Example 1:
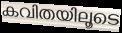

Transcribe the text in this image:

കവിതയിലൂടെ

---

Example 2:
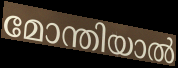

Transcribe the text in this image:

മോന്തിയാൽ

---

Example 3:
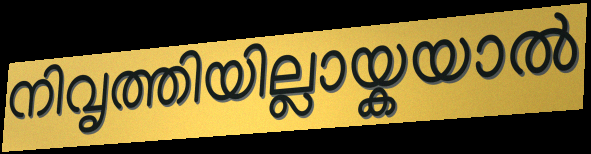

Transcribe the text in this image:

നിവൃത്തിയില്ലായ്കയാൽ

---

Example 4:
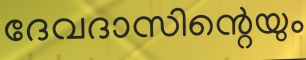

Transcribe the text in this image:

ദേവദാസിന്റെയും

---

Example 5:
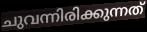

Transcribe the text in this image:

ചുവന്നിരിക്കുന്നത്